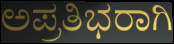
ಅಪ್ರತಿಭರಾಗಿ